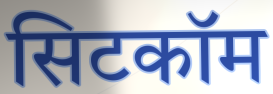
सिटकॉम